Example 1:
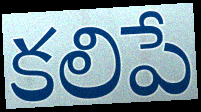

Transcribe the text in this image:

కలిపే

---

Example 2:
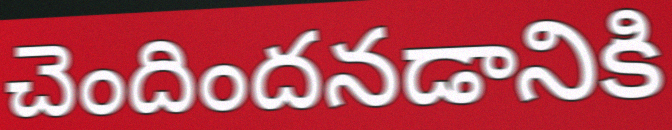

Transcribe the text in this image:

చెందిందనడానికి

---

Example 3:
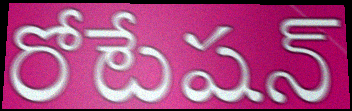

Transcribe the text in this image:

రోటేషన్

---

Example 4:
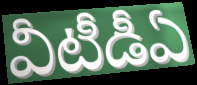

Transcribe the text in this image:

వీటీడీఏ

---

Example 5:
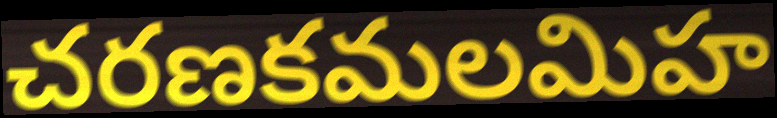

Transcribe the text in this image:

చరణకమలమిహ